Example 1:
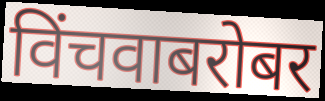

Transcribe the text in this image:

विंचवाबरोबर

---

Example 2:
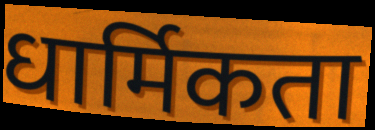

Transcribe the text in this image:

धार्मिकता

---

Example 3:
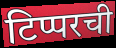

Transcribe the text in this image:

टिप्परची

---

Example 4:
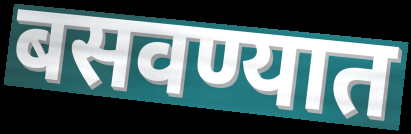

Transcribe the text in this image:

बसवण्यात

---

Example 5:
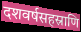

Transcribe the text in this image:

दशवर्षसहस्राणि